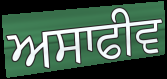
ਅਸਾਫੀਵ